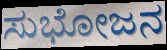
ಸುಭೋಜನ